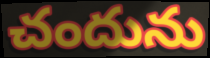
చందును